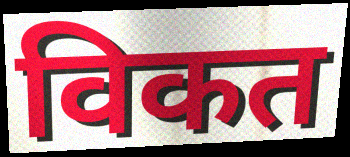
विकत